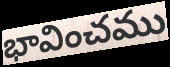
భావించము